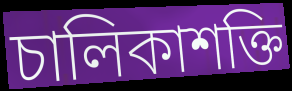
চালিকাশক্তি